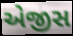
એજીસ